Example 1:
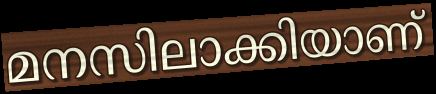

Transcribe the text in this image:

മനസിലാക്കിയാണ്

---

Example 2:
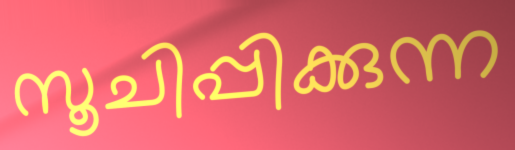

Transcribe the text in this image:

സൂചിപ്പിക്കുന്ന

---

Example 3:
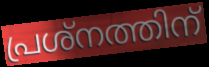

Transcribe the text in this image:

പ്രശ്നത്തിന്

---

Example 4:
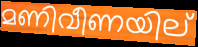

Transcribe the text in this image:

മണിവീണയില്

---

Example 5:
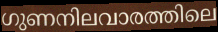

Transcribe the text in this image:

ഗുണനിലവാരത്തിലെ